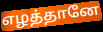
எழத்தானே